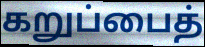
கறுப்பைத்